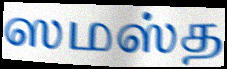
ஸமஸ்த